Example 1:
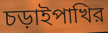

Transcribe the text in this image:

চড়াইপাখির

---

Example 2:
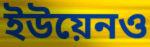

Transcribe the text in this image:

ইউয়েনও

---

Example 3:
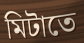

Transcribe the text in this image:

মিটাতে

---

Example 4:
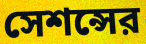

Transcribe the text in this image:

সেশন্সের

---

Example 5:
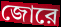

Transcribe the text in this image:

জোরে